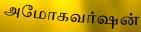
அமோகவர்ஷன்